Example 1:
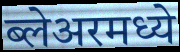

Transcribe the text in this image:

ब्लेअरमध्ये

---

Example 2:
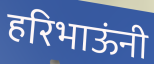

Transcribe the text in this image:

हरिभाऊंनी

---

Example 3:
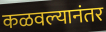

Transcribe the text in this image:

कळवल्यानंतर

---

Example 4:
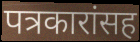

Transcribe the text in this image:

पत्रकारांसह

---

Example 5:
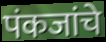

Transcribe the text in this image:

पंकजांचे